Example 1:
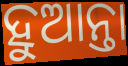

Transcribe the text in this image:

ହୁଆନ୍ତା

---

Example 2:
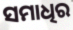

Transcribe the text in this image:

ସମାଧିର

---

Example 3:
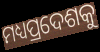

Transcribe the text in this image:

ମଧ୍ୟପ୍ରଦେଶକୁ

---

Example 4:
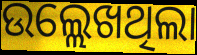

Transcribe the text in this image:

ଉଲ୍ଲେଖଥିଲା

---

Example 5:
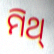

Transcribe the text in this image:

ମିଥ୍